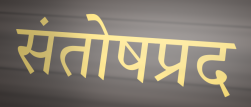
संतोषप्रद